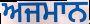
ਅਜਮਾਨ